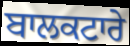
ਬਾਲਕਟਾਰੇ